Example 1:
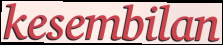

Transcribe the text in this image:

kesembilan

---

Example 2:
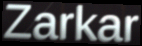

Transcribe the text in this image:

Zarkar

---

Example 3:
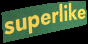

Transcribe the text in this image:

superlike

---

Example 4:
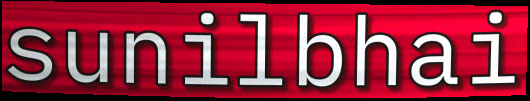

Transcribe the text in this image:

sunilbhai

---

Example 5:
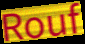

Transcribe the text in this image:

Rouf